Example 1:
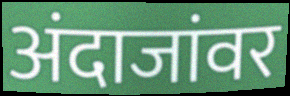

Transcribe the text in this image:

अंदाजांवर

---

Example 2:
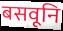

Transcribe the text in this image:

बसवूनि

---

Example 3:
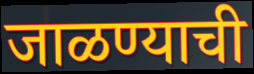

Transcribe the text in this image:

जाळण्याची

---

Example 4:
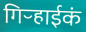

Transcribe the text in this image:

गिऱ्हाईकं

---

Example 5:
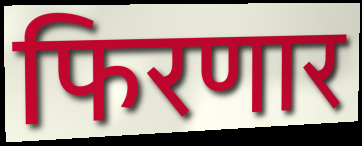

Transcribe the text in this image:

फिरणार